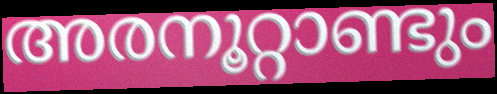
അരനൂറ്റാണ്ടും